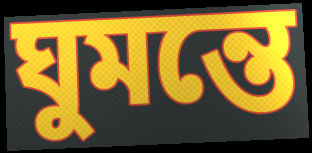
ঘুমন্তে